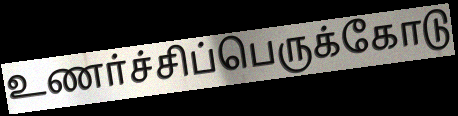
உணர்ச்சிப்பெருக்கோடு